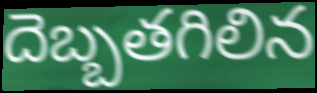
దెబ్బతగిలిన